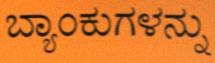
ಬ್ಯಾಂಕುಗಳನ್ನು